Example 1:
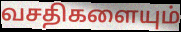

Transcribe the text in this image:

வசதிகளையும்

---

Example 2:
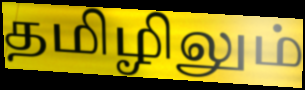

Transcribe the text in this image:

தமிழிலும்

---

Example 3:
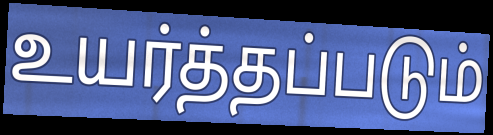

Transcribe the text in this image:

உயர்த்தப்படும்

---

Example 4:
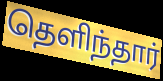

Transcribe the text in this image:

தெளிந்தார்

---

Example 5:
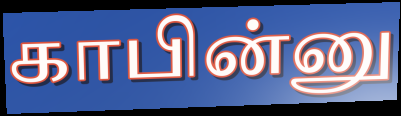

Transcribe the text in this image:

காபின்னு